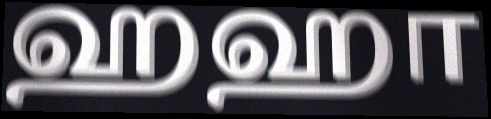
ஹஹா